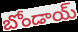
బోండాయ్